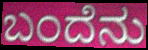
ಬಂದೆನು